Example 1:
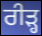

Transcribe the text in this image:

ਰੀੜ੍ਹ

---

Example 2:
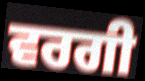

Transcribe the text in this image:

ਵਰਗੀ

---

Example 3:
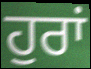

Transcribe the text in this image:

ਹੁਰਾਂ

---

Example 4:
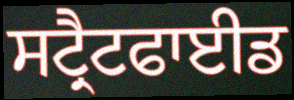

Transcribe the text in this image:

ਸਟ੍ਰੈਟਫਾਈਡ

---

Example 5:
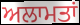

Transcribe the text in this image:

ਅਲਾਮਤਾਂ